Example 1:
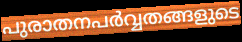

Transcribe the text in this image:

പുരാതനപർവ്വതങ്ങളുടെ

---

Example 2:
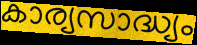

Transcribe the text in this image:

കാര്യസാദ്ധ്യം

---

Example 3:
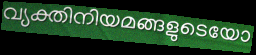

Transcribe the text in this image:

വ്യക്തിനിയമങ്ങളുടെയോ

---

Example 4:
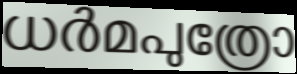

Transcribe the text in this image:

ധർമപുത്രോ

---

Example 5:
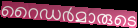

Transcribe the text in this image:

റൈഡർമാരുടെ